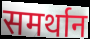
समर्थान